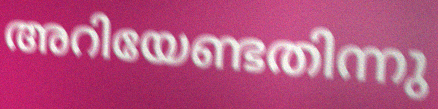
അറിയേണ്ടതിന്നു